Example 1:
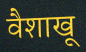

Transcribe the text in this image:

वैशाखू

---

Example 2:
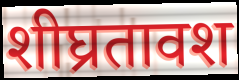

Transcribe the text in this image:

शीघ्रतावश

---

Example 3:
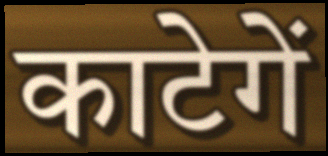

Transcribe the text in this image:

काटेगें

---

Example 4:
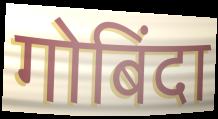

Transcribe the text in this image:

गोबिंदा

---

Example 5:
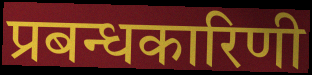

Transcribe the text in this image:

प्रबन्धकारिणी